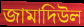
জামাদিউল